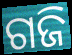
ଗଜି